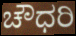
ಚೌಧರಿ